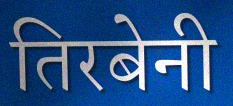
तिरबेनी